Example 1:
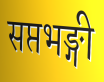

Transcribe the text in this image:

सप्तभङ्गी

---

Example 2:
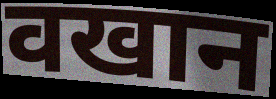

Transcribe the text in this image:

वखान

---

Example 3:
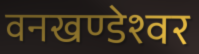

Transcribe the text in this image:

वनखण्डेश्वर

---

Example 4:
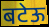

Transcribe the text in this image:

बटेऊ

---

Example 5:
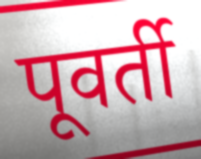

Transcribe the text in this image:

पूवर्ती